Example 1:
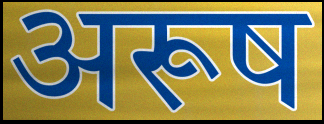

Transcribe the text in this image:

अरूष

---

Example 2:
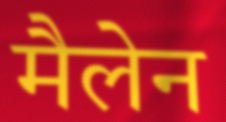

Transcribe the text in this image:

मैलेन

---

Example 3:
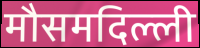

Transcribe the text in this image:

मौसमदिल्ली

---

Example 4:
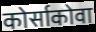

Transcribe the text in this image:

कोर्साकोवा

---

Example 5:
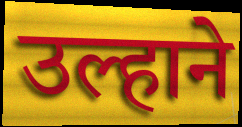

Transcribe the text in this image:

उल्हाने